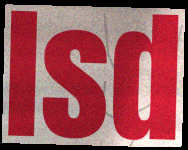
lsd